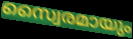
സ്വൈരമായും